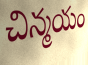
చిన్మయం